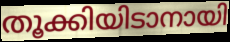
തൂക്കിയിടാനായി